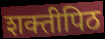
शक्तीपिठ